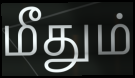
மீதும்